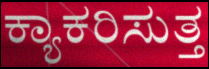
ಕ್ಯಾಕರಿಸುತ್ತ